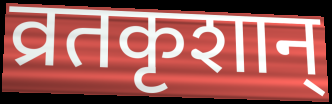
व्रतकृशान्